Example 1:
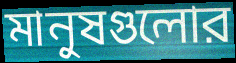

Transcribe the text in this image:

মানুষগুলোর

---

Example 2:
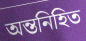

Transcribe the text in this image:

অন্তনিহিত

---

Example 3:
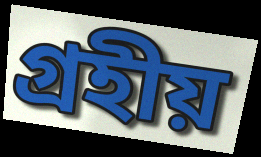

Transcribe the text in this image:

গ্রহীয়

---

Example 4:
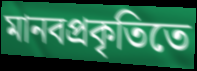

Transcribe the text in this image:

মানবপ্রকৃতিতে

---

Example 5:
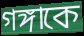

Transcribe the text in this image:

গঙ্গাকে